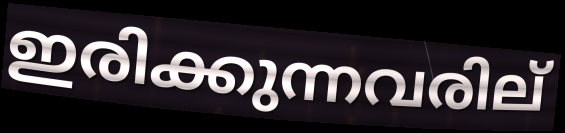
ഇരിക്കുന്നവരില്